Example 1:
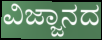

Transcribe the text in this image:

ವಿಜ್ಜಾನದ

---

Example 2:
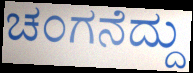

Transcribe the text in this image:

ಚಂಗನೆದ್ದು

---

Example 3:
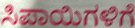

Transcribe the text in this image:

ಸಿಪಾಯಿಗಳಿಗೆ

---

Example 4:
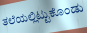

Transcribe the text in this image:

ತಲೆಯಲ್ಲಿಟ್ಟುಕೊಂಡು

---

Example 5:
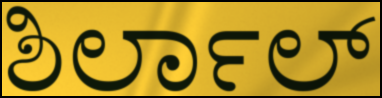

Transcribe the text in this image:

ಶಿರ್ಲಾಲ್